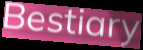
Bestiary